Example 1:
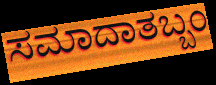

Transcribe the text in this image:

ಸಮಾದಾತಬ್ಬಂ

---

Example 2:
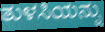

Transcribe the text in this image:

ತುಳಸಿಯನ್ನು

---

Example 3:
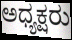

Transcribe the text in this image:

ಅಧ್ಯಕ್ಷರು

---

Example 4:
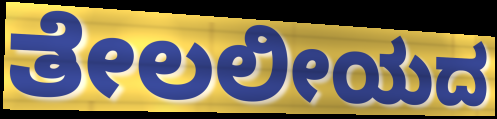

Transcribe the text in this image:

ತೇಲಲೀಯದ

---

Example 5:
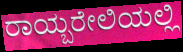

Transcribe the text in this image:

ರಾಯ್ಬರೇಲಿಯಲ್ಲಿ